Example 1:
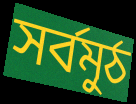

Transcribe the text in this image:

সৰ্বমুঠ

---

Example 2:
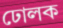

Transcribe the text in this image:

ঢোলক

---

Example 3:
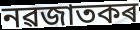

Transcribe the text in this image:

নৱজাতকৰ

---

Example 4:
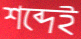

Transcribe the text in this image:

শব্দেই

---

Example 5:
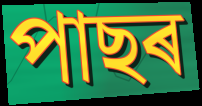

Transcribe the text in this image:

পাছৰ